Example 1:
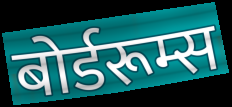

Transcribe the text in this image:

बोर्डरूम्स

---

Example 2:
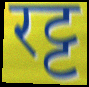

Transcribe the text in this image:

रट्ट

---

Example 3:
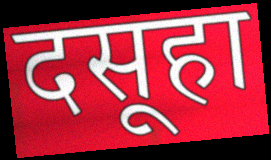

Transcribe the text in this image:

दसूहा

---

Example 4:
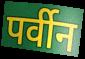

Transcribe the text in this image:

पर्वीन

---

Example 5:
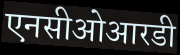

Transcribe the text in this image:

एनसीओआरडी